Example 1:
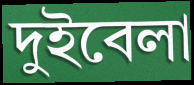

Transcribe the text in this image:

দুইবেলা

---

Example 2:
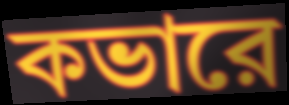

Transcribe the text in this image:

কভারে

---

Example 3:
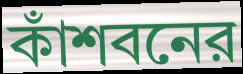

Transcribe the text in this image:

কাঁশবনের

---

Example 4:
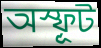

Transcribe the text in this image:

অস্ফূট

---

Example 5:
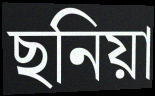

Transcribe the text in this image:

ছনিয়া